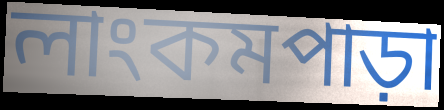
লাংকমপাড়া